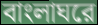
বাংলাঘরে